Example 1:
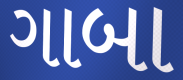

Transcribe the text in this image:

ગાબા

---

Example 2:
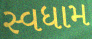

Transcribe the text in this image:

સ્વધામ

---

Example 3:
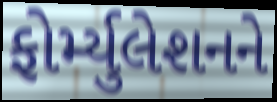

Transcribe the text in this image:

ફોર્મ્યુલેશનને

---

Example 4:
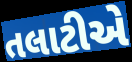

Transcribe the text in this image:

તલાટીએ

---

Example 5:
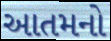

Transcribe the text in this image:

આતમનો